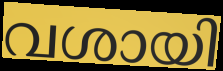
വശായി